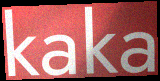
kaka